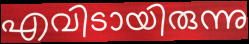
എവിടായിരുന്നു